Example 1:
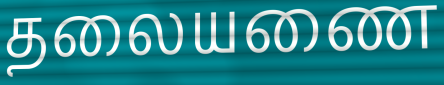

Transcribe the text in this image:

தலையணை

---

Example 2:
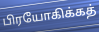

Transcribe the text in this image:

பிரயோகிக்கத்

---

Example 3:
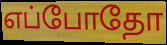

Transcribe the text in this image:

எப்போதோ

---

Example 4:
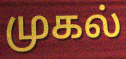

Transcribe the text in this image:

முகல்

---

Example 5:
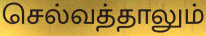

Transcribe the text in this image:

செல்வத்தாலும்